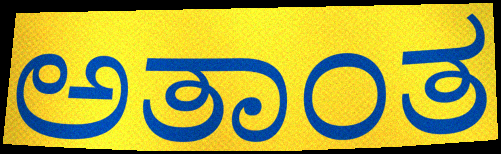
ಅತಾಂತ